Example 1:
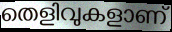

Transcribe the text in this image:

തെളിവുകളാണ്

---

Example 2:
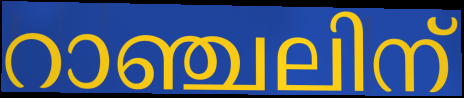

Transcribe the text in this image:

റാഞ്ചലിന്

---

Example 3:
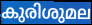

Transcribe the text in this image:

കുരിശുമല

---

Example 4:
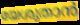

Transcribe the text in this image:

യേശുതാൻ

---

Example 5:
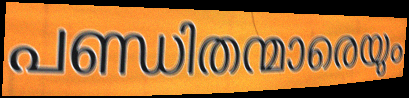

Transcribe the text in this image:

പണ്ഡിതന്മാരെയും